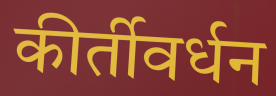
कीर्तीवर्धन